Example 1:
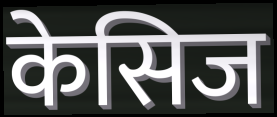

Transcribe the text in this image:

केसिज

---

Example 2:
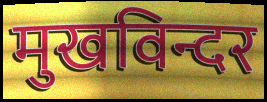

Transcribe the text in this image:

मुखविन्दर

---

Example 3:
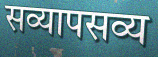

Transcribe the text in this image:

सव्यापसव्य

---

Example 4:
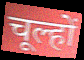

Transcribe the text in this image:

चूल्हों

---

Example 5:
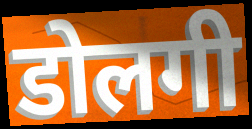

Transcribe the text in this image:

डोलगी